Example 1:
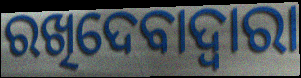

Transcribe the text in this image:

ରଖିଦେବାଦ୍ୱାରା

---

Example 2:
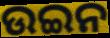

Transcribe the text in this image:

ଉଇନ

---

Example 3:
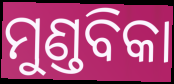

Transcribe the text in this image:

ମୁଣ୍ଡବିକା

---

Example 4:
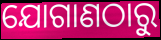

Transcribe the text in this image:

ଯୋଗାଣଠାରୁ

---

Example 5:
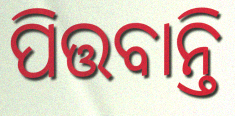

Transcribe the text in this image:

ପିତ୍ତବାନ୍ତି